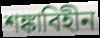
শঙ্কাবিহীন